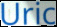
Uric